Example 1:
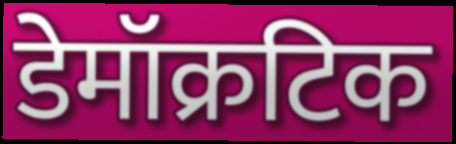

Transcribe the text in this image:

डेमॉक्रटिक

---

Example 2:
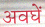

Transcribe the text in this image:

अवघें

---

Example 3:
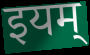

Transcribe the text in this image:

इयम्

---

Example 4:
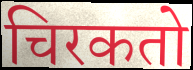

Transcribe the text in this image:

चिरकतो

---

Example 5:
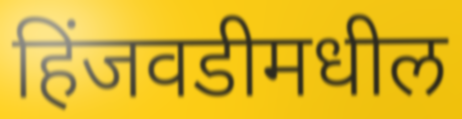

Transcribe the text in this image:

हिंजवडीमधील